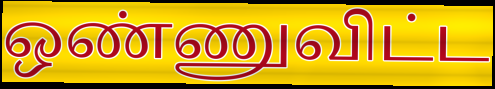
ஒண்ணுவிட்ட